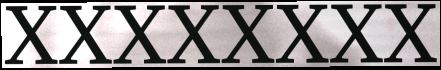
XXXXXXXX